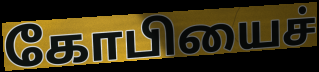
கோபியைச்